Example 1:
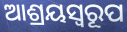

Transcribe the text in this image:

ଆଶ୍ରୟସ୍ୱରୂପ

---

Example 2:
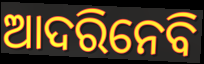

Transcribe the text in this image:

ଆଦରିନେବି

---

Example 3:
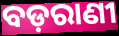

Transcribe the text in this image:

ବଡ଼ରାଣୀ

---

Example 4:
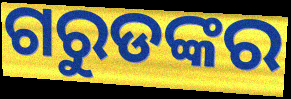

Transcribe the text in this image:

ଗରୁଡଙ୍କର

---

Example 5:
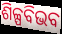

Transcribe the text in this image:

ଶିଳ୍ପବିଭବ